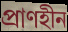
প্ৰাণহীন